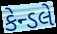
કેન્ડલે